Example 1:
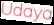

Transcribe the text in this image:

Udaya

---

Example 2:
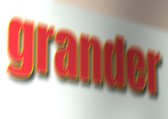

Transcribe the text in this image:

grander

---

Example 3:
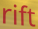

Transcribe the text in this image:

rift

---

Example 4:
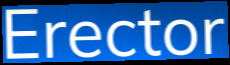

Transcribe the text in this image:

Erector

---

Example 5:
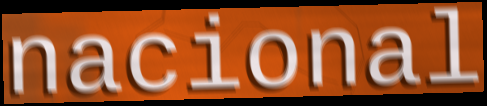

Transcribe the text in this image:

nacional